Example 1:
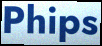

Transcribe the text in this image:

Phips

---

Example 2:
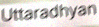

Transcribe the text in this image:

Uttaradhyan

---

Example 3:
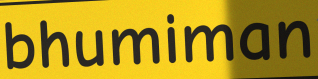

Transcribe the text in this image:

bhumiman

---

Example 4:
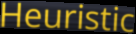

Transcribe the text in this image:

Heuristic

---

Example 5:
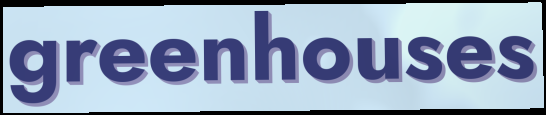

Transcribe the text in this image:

greenhouses